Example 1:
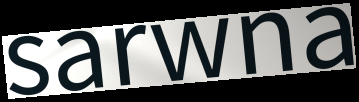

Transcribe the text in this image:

sarwna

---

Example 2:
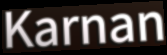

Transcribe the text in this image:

Karnan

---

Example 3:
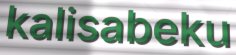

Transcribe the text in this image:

kalisabeku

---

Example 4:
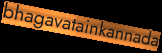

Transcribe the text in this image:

bhagavatainkannada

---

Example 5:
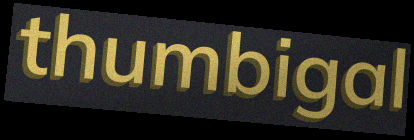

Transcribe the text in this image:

thumbigal